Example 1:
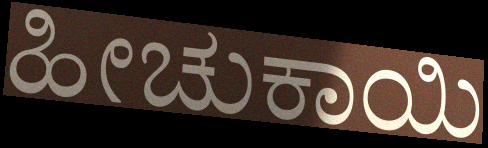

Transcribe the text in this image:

ಹೀಚುಕಾಯಿ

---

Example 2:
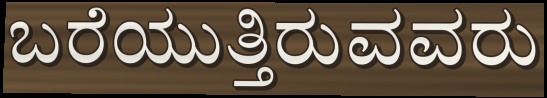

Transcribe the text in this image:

ಬರೆಯುತ್ತಿರುವವರು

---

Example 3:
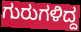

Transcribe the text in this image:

ಗುರುಗಳಿದ್ದ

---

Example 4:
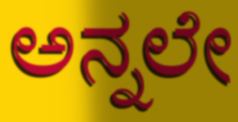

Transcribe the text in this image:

ಅನ್ನಲೇ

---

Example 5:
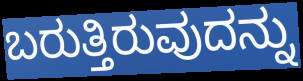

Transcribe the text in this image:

ಬರುತ್ತಿರುವುದನ್ನು